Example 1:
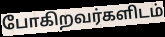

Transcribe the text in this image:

போகிறவர்களிடம்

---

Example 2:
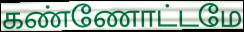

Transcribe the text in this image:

கண்ணோட்டமே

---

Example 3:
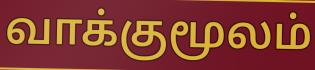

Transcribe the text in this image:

வாக்குமூலம்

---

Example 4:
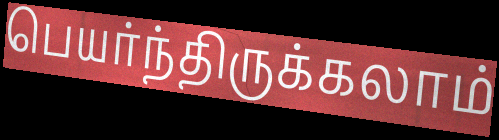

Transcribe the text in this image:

பெயர்ந்திருக்கலாம்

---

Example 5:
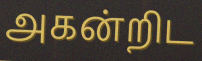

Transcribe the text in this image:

அகன்றிட